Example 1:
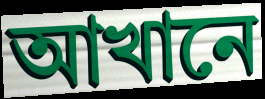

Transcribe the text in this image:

আখানে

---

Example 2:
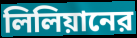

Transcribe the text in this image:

লিলিয়ানের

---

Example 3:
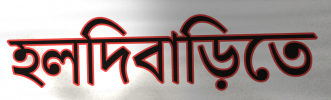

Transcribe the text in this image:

হলদিবাড়িতে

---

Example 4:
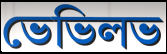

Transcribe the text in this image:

ভেভিলভ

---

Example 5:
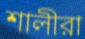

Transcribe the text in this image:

শালীরা